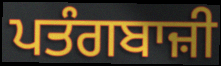
ਪਤੰਗਬਾਜ਼ੀ